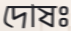
দোষঃ